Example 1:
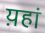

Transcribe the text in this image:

य़हां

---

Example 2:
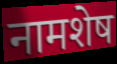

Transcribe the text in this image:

नामशेष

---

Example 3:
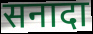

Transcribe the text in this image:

सनादा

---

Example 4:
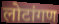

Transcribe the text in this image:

लोटांगण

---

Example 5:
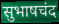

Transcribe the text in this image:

सुभाषचंद